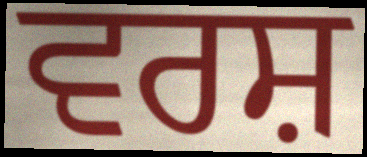
ਵਰਸ਼